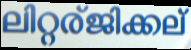
ലിറ്റര്ജിക്കല്